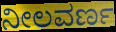
ನೀಲವರ್ಣ